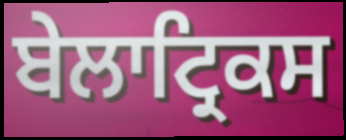
ਬੇਲਾਟ੍ਰਿਕਸ